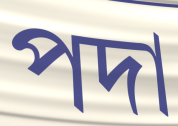
পদা